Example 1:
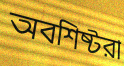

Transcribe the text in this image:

অবশিষ্টরা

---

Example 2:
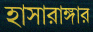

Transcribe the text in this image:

হাসারাঙ্গার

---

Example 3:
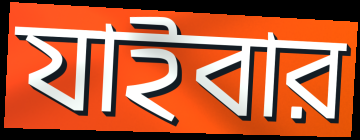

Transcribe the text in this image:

যাইবার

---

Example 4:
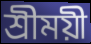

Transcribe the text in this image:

শ্রীময়ী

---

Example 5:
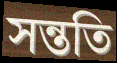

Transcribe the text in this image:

সন্ততি